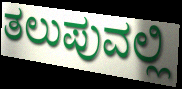
ತಲುಪುವಲ್ಲಿ